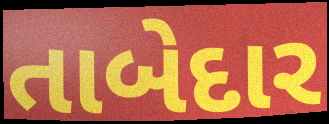
તાબેદાર